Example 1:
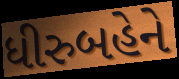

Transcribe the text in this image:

ધીરુબહેને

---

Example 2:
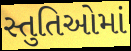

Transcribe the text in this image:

સ્તુતિઓમાં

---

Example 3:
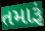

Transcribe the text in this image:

તમારૂં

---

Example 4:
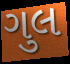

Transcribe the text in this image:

ગુલ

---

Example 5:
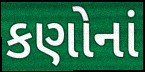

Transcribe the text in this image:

કણોનાં